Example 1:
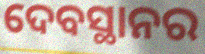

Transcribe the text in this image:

ଦେବସ୍ଥାନର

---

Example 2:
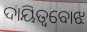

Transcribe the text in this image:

ଦାୟିତ୍ୱବୋଝ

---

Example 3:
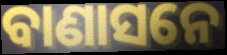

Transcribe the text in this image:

ବାଣାସନେ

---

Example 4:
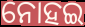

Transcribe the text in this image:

ନୋହଇ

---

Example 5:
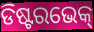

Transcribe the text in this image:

ଡିଷ୍ଟରଭେକ୍